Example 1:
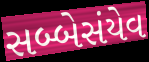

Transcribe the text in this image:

સબ્બેસંયેવ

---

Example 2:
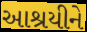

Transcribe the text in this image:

આશ્રયીને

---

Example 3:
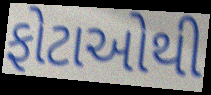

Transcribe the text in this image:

ફોટાઓથી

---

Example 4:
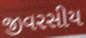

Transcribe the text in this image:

જીવરસીય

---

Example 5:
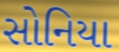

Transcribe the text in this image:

સોનિયા